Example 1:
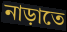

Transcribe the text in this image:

নাড়াতে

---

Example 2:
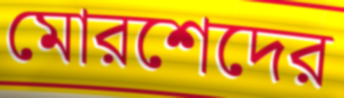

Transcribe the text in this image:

মোরশেদের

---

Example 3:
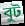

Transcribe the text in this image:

বুট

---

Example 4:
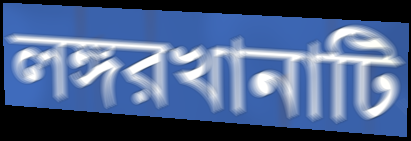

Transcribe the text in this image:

লঙ্গরখানাটি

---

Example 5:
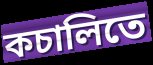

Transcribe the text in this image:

কচালিতে